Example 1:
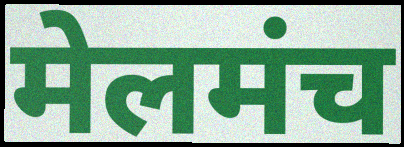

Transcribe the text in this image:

मेलमंच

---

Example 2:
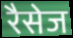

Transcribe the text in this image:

रैसेज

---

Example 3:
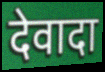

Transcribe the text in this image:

देवादा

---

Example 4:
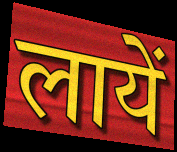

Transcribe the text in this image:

लायें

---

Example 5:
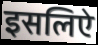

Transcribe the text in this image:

इसलिऐ